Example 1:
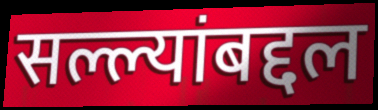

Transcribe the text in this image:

सल्ल्यांबद्दल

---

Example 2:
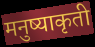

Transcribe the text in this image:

मनुष्याकृती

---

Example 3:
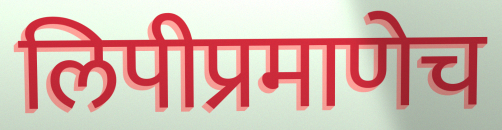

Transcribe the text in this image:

लिपीप्रमाणेच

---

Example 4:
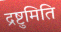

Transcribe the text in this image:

द्रष्टुमिति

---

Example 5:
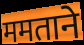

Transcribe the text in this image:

ममताने